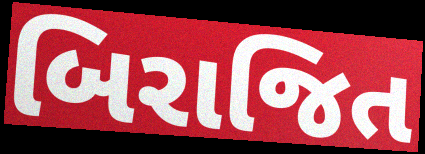
બિરાજિત